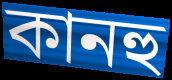
কানহু